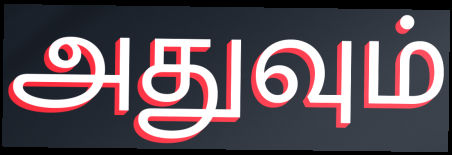
அதுவும்